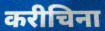
करीचिना